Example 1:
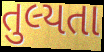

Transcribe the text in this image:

તુલ્યતા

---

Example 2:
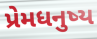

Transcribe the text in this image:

પ્રેમધનુષ્ય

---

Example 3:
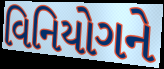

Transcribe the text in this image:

વિનિયોગને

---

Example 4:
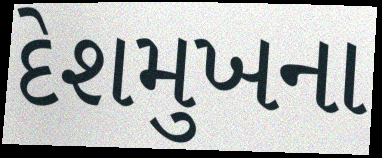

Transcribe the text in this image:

દેશમુખના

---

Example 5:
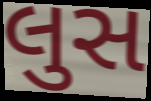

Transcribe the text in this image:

લુસ